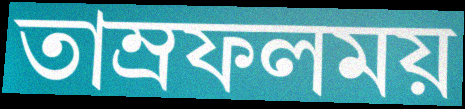
তাম্রফলময়